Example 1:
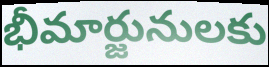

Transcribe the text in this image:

భీమార్జునులకు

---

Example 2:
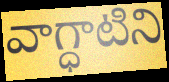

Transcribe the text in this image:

వాగ్ధాటిని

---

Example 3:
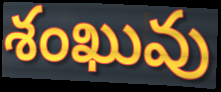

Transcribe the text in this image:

శంఖువు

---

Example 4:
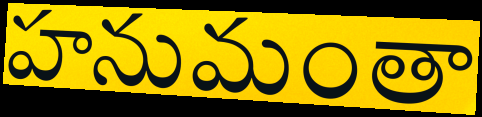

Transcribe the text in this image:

హనుమంతా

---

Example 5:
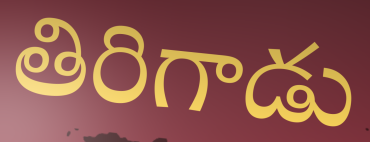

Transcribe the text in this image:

తిరిగాడు